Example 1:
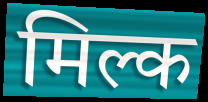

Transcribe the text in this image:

मिल्क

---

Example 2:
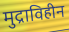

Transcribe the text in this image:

मुद्राविहीन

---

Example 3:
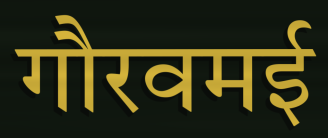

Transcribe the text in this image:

गौरवमई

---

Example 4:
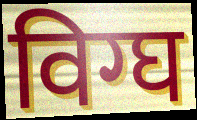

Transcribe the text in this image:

विग्घ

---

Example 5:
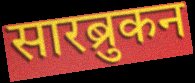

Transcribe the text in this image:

सारब्रुकन